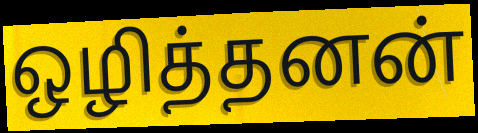
ஒழித்தனன்